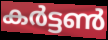
കർട്ടൺ